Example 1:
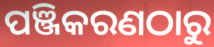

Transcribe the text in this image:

ପଞ୍ଜିକରଣଠାରୁ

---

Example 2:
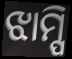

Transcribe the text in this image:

ଝାମ୍ପି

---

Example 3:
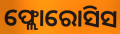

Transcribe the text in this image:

ଫ୍ଲୋରୋସିସ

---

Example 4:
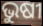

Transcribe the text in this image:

ଭୁଷୀ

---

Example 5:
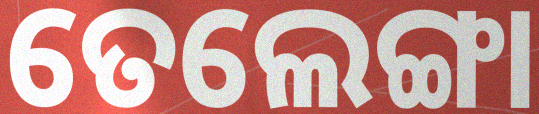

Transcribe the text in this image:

ତେଲେଙ୍ଗା